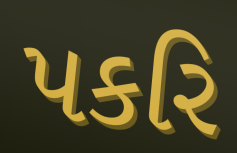
પકરિ